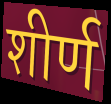
शीर्ण